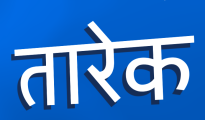
तारेक